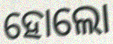
ହୋଲୋ